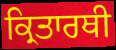
ਕ੍ਰਿਤਾਰਥੀ